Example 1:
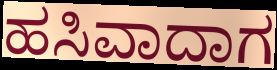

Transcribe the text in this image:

ಹಸಿವಾದಾಗ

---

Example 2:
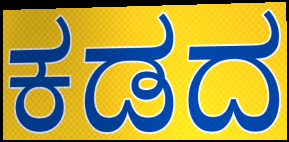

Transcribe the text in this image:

ಕಡದ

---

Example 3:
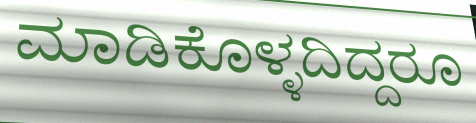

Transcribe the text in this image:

ಮಾಡಿಕೊಳ್ಳದಿದ್ದರೂ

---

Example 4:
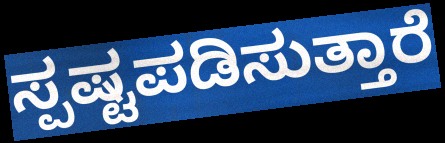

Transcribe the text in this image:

ಸ್ಪಷ್ಟಪಡಿಸುತ್ತಾರೆ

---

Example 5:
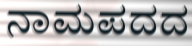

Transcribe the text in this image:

ನಾಮಪದದ